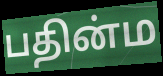
பதின்ம